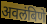
अवलंबिणे